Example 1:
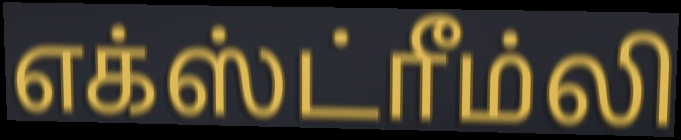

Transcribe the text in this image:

எக்ஸ்ட்ரீம்லி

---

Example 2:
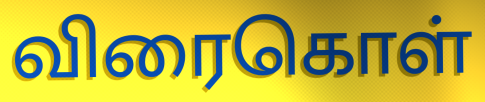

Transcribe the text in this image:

விரைகொள்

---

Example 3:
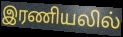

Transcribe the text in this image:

இரணியலில்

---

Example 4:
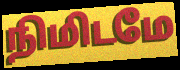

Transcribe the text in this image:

நிமிடமே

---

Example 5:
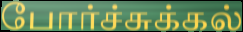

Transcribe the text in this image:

போர்ச்சுக்கல்